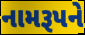
નામરૂપને